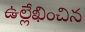
ఉల్లేఖించిన